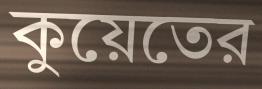
কুয়েতের